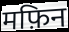
मफ़िन